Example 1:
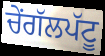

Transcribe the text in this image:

ਚੇਂਗੱਲਪੱਟੂ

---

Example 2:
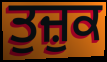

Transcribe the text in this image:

ਤੁਜ਼ੁਕ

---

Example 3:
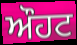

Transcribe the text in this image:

ਔਹਟ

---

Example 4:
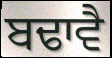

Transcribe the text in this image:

ਬਢਾਵੈ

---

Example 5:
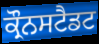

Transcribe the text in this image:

ਕ੍ਰੌਨਸਟੈਡਟ